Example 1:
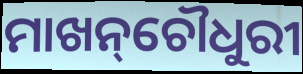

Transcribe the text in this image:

ମାଖନ୍‌ଚୌଧୁରୀ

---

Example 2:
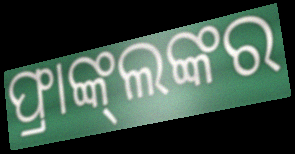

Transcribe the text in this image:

ଫ୍ରାଙ୍କ୍‌ଲଙ୍କର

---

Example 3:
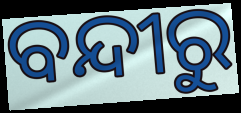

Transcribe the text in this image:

ବନ୍ଦୀରୁ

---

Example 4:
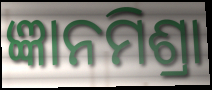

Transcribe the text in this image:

ଜ୍ଞାନମିଶ୍ରା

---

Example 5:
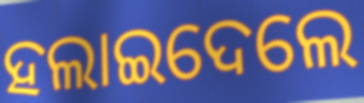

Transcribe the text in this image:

ହଲାଇଦେଲେ